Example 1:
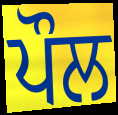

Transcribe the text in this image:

ਪੌਲ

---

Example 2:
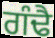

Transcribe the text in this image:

ਗੰਢੈ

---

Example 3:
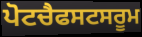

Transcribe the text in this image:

ਪੋਟਚੈਫਸਟਸਰੂਮ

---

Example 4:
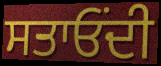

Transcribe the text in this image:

ਸਤਾਓਂਦੀ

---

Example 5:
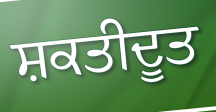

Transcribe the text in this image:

ਸ਼ਕਤੀਦੂਤ